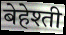
बेहेश्ती